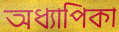
অধ্যাপিকা